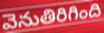
వెనుతిరిగింది